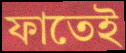
ফাতেই